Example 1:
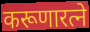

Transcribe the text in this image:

करूणारत्ने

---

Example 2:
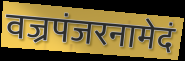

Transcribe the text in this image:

वज्रपंजरनामेदं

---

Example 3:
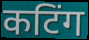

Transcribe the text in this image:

कटिंग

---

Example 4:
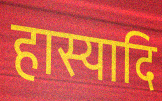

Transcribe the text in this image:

हास्यादि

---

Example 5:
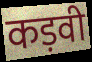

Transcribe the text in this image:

कड़वी